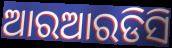
ଆରଆରଡିସି